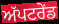
ਅੱਪਟਰੇਂਡ